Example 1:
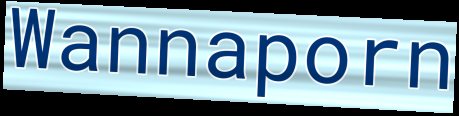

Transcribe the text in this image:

Wannaporn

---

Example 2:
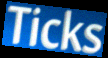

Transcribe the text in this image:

Ticks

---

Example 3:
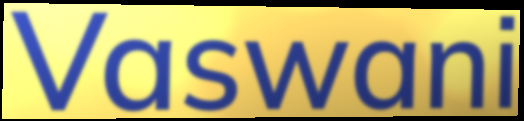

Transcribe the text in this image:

Vaswani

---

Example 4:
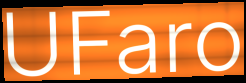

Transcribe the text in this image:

UFaro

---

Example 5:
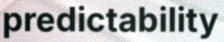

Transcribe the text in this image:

predictability